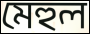
মেহুল